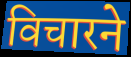
विचारने